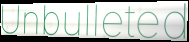
Unbulleted